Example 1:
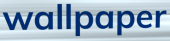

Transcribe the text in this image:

wallpaper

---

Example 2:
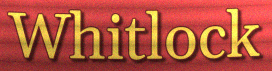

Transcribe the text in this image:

Whitlock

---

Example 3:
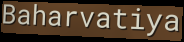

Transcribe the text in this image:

Baharvatiya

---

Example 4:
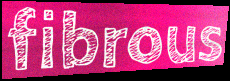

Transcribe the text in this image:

fibrous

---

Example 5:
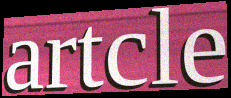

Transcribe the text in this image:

artcle